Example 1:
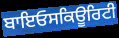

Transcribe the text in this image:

ਬਾਇਓਸਕਿਊਰਿਟੀ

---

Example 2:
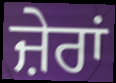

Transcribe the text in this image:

ਜ਼ੇਰਾਂ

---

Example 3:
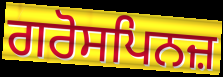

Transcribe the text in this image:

ਗਰੋਸਪਿਨਜ਼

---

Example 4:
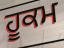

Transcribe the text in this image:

ਹੂਕਮ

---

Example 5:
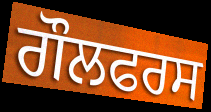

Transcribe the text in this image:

ਗੌਲਫਰਸ